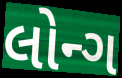
લોન્ગ